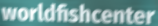
worldfishcenter